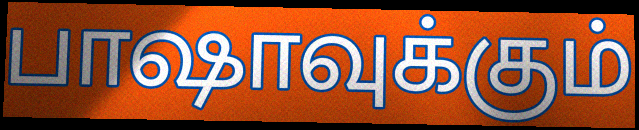
பாஷாவுக்கும்